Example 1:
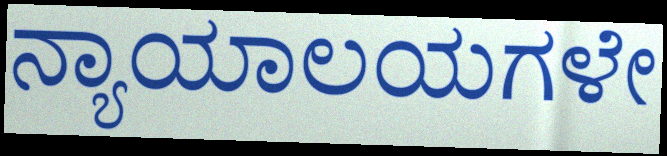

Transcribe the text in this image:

ನ್ಯಾಯಾಲಯಗಳೇ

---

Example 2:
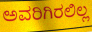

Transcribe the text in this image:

ಅವರಿಗಿರಲಿಲ್ಲ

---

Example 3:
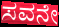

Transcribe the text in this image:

ಸವನೇ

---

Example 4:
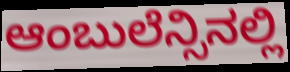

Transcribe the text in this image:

ಆಂಬುಲೆನ್ಸಿನಲ್ಲಿ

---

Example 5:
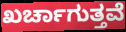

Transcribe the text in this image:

ಖರ್ಚಾಗುತ್ತವೆ